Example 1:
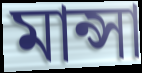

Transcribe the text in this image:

মান্সা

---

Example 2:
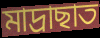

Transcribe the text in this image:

মাদ্ৰাছাত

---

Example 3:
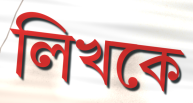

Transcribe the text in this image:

লিখকে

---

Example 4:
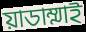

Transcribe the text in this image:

য়াডাম্মাই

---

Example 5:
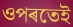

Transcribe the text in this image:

ওপৰতেই